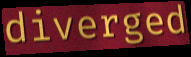
diverged